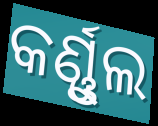
କର୍ଣ୍ଣୁଲ